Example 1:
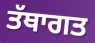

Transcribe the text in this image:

ਤੱਥਾਗਤ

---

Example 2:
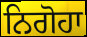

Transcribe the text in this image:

ਨਿਗੋਹਾ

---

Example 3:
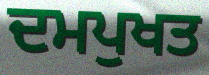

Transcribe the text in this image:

ਦਮਪੁਖਤ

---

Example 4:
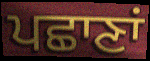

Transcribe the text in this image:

ਪਛਾਣਾਂ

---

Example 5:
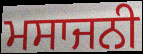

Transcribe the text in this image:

ਮਸਾਜਨੀ